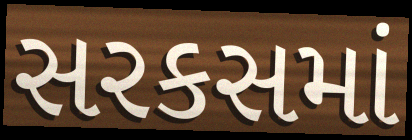
સરકસમાં